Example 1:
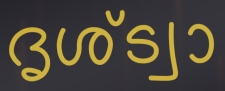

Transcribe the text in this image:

ദൃശ്ട്വാ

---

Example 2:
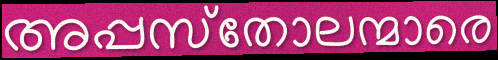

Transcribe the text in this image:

അപ്പസ്‌തോലന്മാരെ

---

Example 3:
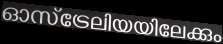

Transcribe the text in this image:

ഓസ്ട്രേലിയയിലേക്കും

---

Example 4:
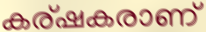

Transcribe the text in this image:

കര്ഷകരാണ്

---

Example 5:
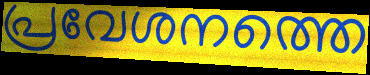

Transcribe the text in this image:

പ്രവേശനത്തെ